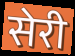
सेरी